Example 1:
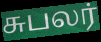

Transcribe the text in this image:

சுபலர்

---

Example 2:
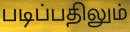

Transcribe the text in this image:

படிப்பதிலும்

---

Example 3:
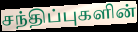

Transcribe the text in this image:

சந்திப்புகளின்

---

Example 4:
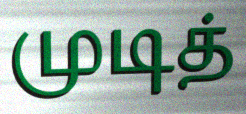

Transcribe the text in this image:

முடித்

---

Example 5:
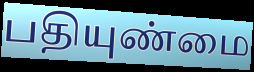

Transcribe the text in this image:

பதியுண்மை